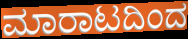
ಮಾರಾಟದಿಂದ